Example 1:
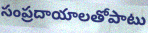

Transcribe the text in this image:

సంప్రదాయాలతోపాటు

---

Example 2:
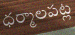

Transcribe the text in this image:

ధర్మాలపట్ల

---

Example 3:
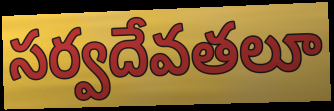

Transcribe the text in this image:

సర్వదేవతలూ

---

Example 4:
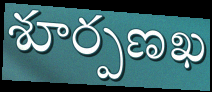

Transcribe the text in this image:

శూర్పణఖ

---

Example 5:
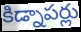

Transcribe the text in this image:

కిడ్నాపర్లు